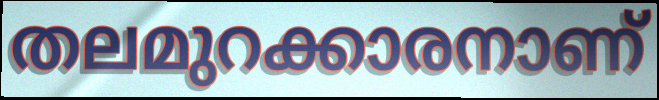
തലമുറക്കാരനാണ്